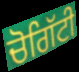
ਚੋਗਿੱਟੀ